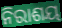
ନିରାଶୟ